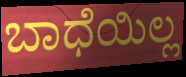
ಬಾಧೆಯಿಲ್ಲ